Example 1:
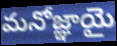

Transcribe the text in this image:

మనోజ్ఞాయై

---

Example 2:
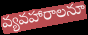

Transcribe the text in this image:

వ్యవహారాలనూ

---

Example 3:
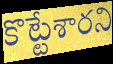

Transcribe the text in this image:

కొట్టేశారని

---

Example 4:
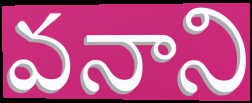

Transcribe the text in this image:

వనాని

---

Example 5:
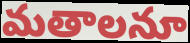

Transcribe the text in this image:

మతాలనూ